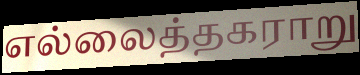
எல்லைத்தகராறு